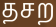
தசற